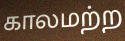
காலமற்ற